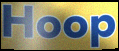
Hoop